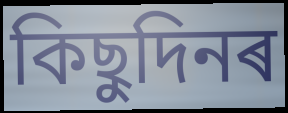
কিছুদিনৰ